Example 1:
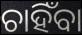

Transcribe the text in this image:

ଚାହିଁବା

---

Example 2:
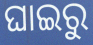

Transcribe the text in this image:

ଘାଇରୁ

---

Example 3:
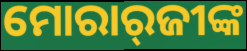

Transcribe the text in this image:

ମୋରାର୍‌ଜୀଙ୍କ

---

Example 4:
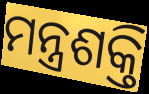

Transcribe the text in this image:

ମନ୍ତ୍ରଶକ୍ତି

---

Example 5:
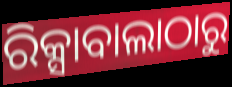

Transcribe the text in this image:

ରିକ୍ସାବାଲାଠାରୁ